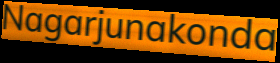
Nagarjunakonda